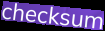
checksum